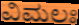
ವಿಮಲಃ